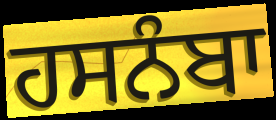
ਹਸਨੰਬਾ